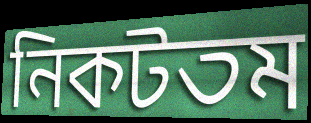
নিকটতম